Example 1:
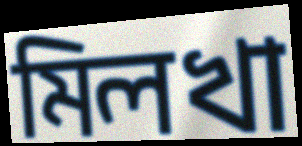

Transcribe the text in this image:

মিলখা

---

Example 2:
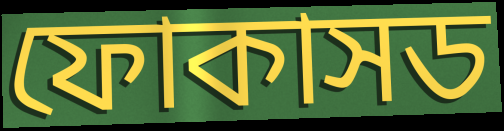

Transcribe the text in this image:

ফোকাসড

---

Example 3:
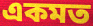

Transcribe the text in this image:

একমত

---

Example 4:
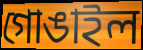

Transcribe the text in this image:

গোঙাইল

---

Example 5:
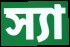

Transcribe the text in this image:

স্যা